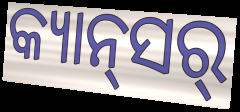
କ୍ୟାନ୍‍ସର୍